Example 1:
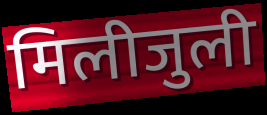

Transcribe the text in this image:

मिलीजुली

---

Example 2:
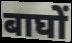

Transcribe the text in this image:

बाघों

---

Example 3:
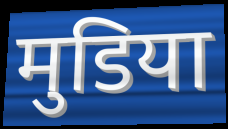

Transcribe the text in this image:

मुडिया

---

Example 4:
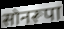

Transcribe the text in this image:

सोनरूपा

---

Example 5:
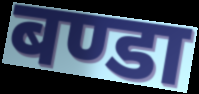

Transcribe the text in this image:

बण्डा